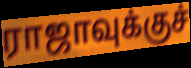
ராஜாவுக்குச்